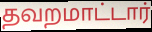
தவறமாட்டார்